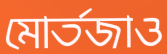
মোর্তজাও